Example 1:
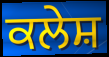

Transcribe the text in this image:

ਕਲੇਸ਼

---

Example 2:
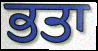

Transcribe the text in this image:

ਭਤਾ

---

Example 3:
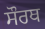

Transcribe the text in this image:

ਸੌਰਥ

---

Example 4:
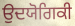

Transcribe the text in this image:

ਉਦਯੋਗਿਕੀ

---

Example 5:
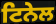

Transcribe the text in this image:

ਟਿਨੇਲ